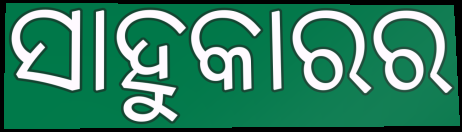
ସାହୁକାରର